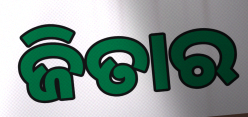
ଜିତାର